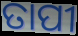
ତାପୀ